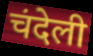
चंदेली